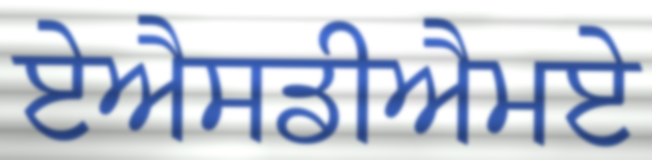
ਏਐਸਡੀਐਮਏ